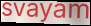
svayam